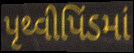
પૃથ્વીપિંડમાં